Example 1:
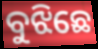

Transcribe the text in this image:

ବୁଝିଛେ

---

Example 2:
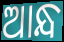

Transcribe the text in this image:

ଆନ୍ଧ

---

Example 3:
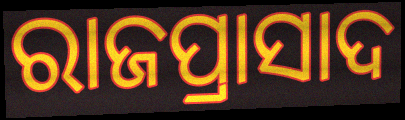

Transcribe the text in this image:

ରାଜପ୍ରାସାଦ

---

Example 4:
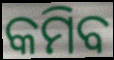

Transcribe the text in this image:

କମିବ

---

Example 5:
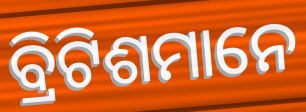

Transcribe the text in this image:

ବ୍ରିଟିଶମାନେ